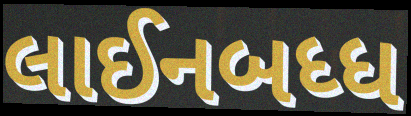
લાઈનબધ્ધ